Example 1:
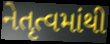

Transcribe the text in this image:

નેતૃત્વમાંથી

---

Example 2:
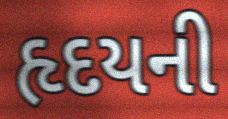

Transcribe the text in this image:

હૃદયની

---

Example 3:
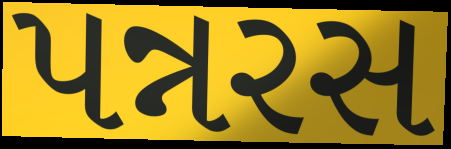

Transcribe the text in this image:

પન્નરસ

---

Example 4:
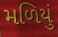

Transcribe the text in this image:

મળિયું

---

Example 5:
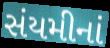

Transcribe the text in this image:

સંયમીનાં